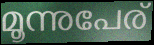
മൂന്നുപേര്